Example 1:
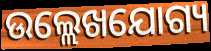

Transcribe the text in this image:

ଉଲ୍ଲେଖଯୋଗ୍ୟ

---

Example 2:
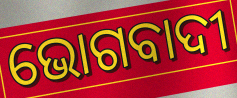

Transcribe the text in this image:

ଭୋଗବାଦୀ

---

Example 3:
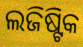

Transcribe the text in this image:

ଲଜିଷ୍ଟିକ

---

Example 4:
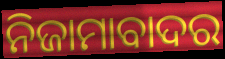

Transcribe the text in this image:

ନିଜାମାବାଦର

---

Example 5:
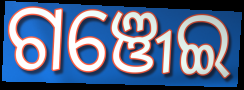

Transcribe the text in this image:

ଗଞ୍ଜେଇ